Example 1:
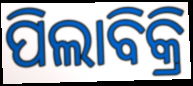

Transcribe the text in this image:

ପିଲାବିକ୍ରି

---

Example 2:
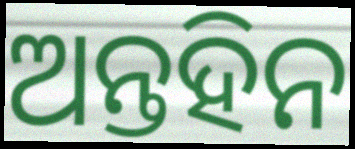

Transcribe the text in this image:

ଅନ୍ତହିନ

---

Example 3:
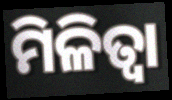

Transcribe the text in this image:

ମିଳିତ୍ଵା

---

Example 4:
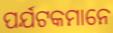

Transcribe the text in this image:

ପର୍ଯଟକମାନେ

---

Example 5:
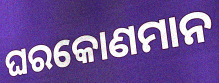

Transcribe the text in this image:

ଘରକୋଣମାନ